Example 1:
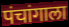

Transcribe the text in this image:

पंचांगाला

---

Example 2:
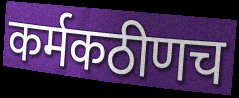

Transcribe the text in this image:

कर्मकठीणच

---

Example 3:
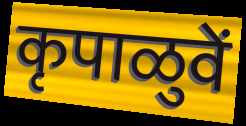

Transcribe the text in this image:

कृपाळुवें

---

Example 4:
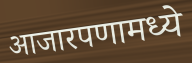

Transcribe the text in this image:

आजारपणामध्ये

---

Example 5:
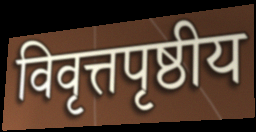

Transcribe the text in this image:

विवृत्तपृष्ठीय